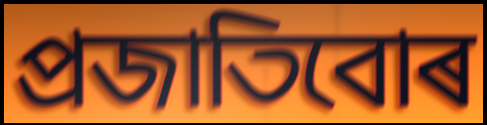
প্ৰজাতিবোৰ